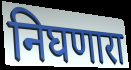
निघणारा